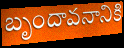
బృందావనానికి